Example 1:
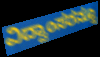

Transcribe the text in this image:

ವಿದ್ವಾಂಸರನ್ನೂ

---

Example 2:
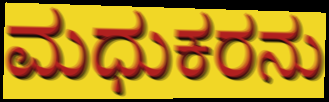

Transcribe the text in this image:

ಮಧುಕರನು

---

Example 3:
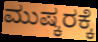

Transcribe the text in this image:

ಮುಷ್ಕರಕ್ಕೆ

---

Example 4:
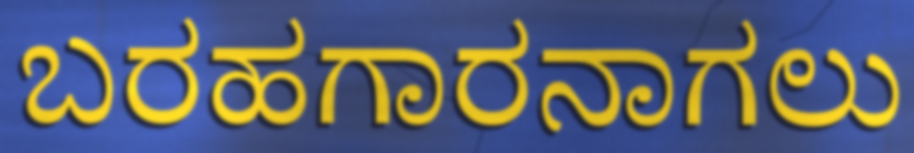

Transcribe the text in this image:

ಬರಹಗಾರನಾಗಲು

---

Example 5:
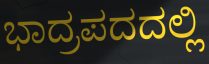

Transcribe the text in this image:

ಭಾದ್ರಪದದಲ್ಲಿ